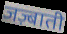
जज़्बाती